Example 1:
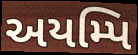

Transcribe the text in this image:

અયમ્પિ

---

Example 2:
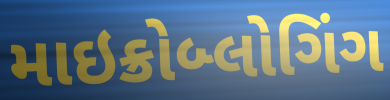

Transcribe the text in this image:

માઇક્રોબ્લોગિંગ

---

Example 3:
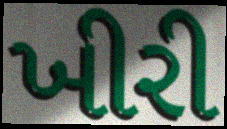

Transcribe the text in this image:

ખીરી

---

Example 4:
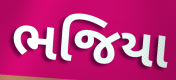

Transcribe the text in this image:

ભજિયા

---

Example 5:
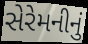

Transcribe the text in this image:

સેરેમનીનું